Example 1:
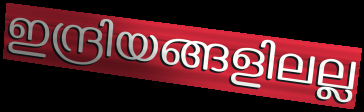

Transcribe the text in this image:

ഇന്ദ്രിയങ്ങളിലല്ല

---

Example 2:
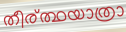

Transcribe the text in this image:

തീര്ത്ഥയാത്രാ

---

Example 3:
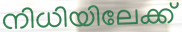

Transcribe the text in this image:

നിധിയിലേക്ക്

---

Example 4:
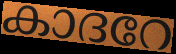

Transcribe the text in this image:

കാദറേ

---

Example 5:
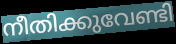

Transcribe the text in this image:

നീതിക്കുവേണ്ടി